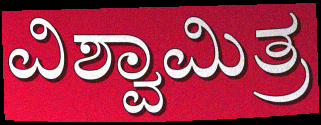
ವಿಶ್ವಾಮಿತ್ರ